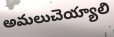
అమలుచెయ్యాలి